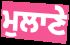
ਮੁਲਾਣੇ